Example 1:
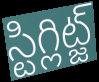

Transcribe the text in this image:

స్టిగ్లిట్జ్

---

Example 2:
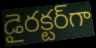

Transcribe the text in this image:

డైరక్టర్‌గా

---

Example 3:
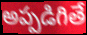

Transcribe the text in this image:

అప్పడిగితే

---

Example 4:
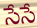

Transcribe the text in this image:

సేసే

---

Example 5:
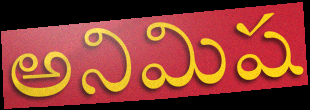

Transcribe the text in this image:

అనిమిష